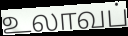
உலாவப்